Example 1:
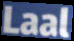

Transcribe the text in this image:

Laal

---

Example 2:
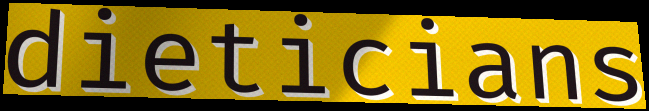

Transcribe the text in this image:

dieticians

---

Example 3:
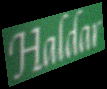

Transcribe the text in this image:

Haldar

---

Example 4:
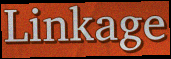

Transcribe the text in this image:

Linkage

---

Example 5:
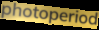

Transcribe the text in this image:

photoperiod